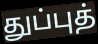
துப்புத்